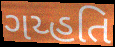
ગય્હતિ